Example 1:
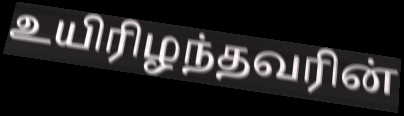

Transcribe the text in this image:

உயிரிழந்தவரின்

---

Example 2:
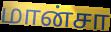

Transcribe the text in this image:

மான்சா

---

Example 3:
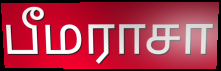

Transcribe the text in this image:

பீமராசா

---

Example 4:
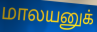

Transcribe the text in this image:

மாலயனுக்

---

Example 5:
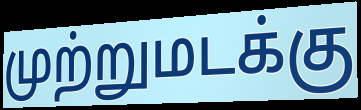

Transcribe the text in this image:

முற்றுமடக்கு